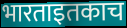
भारताइतकाच